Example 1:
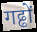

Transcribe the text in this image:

गढ्ढों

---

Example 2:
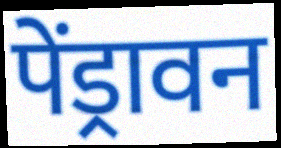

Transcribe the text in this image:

पेंड्रावन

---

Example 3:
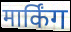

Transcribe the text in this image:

मार्किंग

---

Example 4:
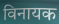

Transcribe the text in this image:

विनायक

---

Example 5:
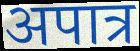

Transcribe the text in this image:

अपात्र